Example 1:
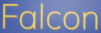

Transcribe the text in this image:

Falcon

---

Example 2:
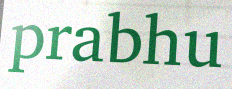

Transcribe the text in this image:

prabhu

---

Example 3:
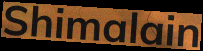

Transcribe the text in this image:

Shimalain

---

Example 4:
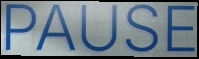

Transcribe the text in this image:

PAUSE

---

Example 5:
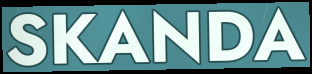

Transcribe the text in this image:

SKANDA